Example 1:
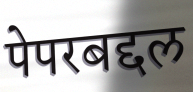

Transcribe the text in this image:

पेपरबद्दल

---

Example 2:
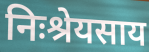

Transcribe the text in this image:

निःश्रेयसाय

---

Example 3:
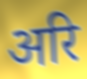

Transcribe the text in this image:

अरि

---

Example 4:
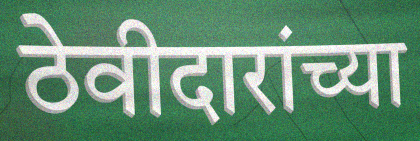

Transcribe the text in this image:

ठेवीदारांच्या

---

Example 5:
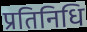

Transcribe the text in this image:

प्रतिनिधि